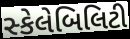
સ્કેલેબિલિટી